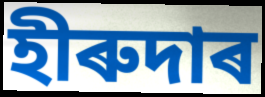
হীৰুদাৰ